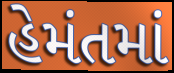
હેમંતમાં